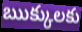
ఋక్కులకు